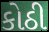
કોઠી